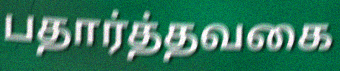
பதார்த்தவகை